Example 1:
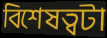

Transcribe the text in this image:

বিশেষত্বটা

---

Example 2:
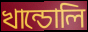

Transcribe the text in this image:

খান্ডোলি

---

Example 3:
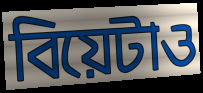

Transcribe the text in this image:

বিয়েটাও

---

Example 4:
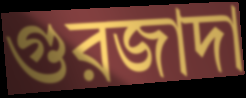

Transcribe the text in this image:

গুরজাদা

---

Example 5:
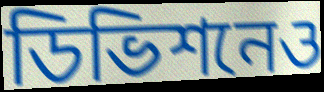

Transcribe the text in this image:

ডিভিশনেও